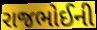
રાજભોઈની